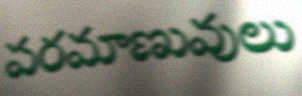
పరమాణువులు